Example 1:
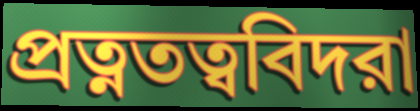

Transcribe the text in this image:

প্রত্নতত্ববিদরা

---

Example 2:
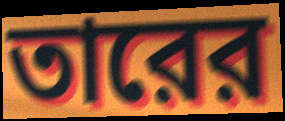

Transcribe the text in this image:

তারের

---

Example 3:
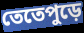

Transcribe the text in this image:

তেতেপুড়ে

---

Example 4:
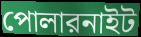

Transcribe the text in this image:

পোলারনাইট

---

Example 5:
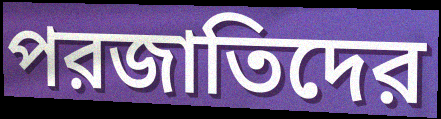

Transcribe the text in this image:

পরজাতিদের